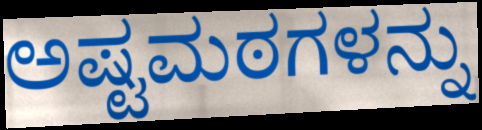
ಅಷ್ಟಮಠಗಳನ್ನು